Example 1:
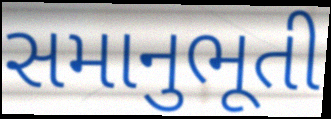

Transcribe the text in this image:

સમાનુભૂતી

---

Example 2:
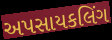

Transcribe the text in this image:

અપસાયકલિંગ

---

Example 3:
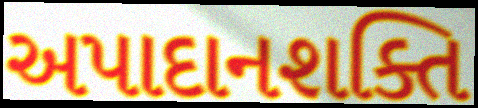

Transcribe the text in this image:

અપાદાનશક્તિ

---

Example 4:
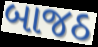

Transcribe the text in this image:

બાજઠ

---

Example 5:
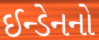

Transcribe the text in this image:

ઈન્ડેનનો